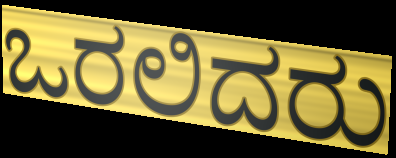
ಒರಲಿದರು